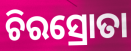
ଚିରସ୍ରୋତା